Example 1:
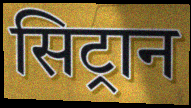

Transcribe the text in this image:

सिट्रान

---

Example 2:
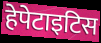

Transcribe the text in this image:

हेपेटाइटिस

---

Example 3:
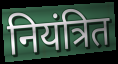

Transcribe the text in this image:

नियंत्रित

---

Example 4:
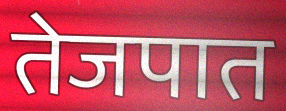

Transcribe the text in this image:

तेजपात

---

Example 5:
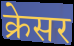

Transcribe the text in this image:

क्रेसर